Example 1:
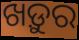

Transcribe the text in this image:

ଖଡ଼ୁର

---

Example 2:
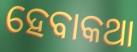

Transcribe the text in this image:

ହେବାକଥା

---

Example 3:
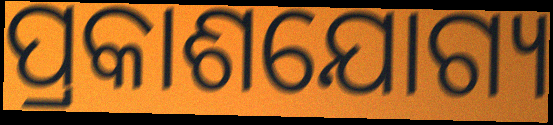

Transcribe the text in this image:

ପ୍ରକାଶଯୋଗ୍ୟ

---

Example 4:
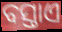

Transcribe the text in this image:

ବସ୍ତାଏ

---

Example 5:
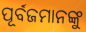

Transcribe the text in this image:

ପୂର୍ବଜମାନଙ୍କୁ